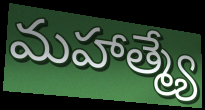
మహాత్మ్యే